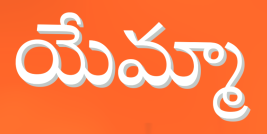
యేమ్మా